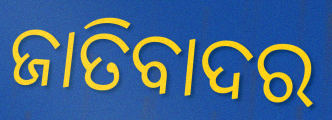
ଜାତିବାଦର